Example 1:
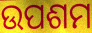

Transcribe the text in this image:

ଉପଶମ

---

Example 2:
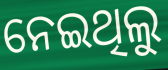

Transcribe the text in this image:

ନେଇଥିଲୁ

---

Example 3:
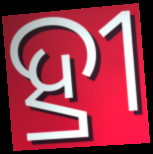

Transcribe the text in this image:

ହ୍ରୀ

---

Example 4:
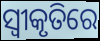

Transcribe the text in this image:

ସ୍ବୀକୃତିରେ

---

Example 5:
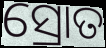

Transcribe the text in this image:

ସ୍ରୋତ